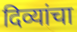
दिव्यांचा